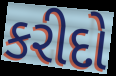
કરીદો